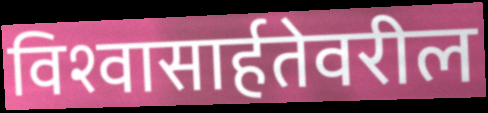
विश्वासार्हतेवरील